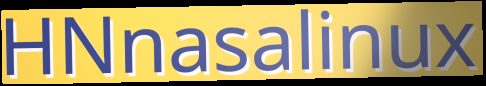
HNnasalinux